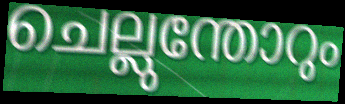
ചെല്ലുന്തോറും